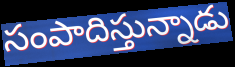
సంపాదిస్తున్నాడు